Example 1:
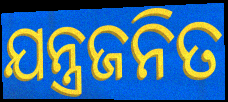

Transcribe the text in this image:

ଯନ୍ତ୍ରଜନିତ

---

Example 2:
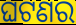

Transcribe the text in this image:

ଘଟଣର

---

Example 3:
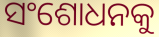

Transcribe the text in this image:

ସଂଶୋଧନକୁ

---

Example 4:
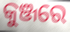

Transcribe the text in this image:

କୁଞ୍ଜରେ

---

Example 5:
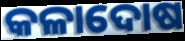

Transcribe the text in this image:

କଳାଦୋଷ